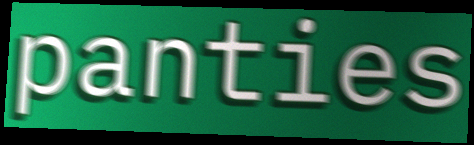
panties